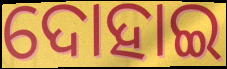
ଦୋହାଇ